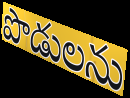
పొడులను